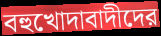
বহুখোদাবাদীদের